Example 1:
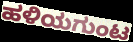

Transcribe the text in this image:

ಹಳಿಯಗುಂಟ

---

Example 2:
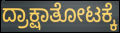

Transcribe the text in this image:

ದ್ರಾಕ್ಷಾತೋಟಕ್ಕೆ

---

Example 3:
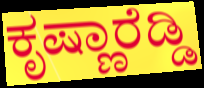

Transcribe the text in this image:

ಕೃಷ್ಣಾರೆಡ್ಡಿ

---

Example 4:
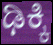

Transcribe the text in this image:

ಢಿಕ್ಕಿ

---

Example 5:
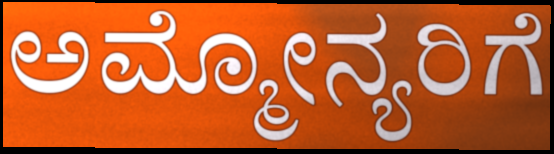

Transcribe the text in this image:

ಅಮ್ಮೋನ್ಯರಿಗೆ